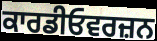
ਕਾਰਡੀਓਵਰਜ਼ਨ